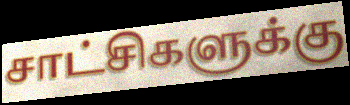
சாட்சிகளுக்கு